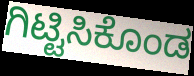
ಗಿಟ್ಟಿಸಿಕೊಂಡ